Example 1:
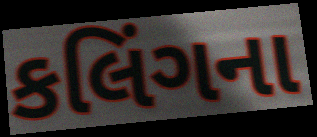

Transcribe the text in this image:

કલિંગના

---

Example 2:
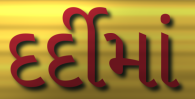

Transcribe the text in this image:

દર્દીમાં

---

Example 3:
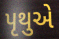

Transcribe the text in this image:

પૃથુએ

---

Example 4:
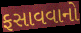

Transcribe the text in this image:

ફસાવવાનો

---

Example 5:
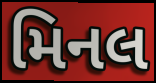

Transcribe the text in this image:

મિનલ